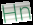
Hn